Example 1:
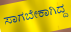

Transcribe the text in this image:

ಸಾಗಬೇಕಾಗಿದ್ದ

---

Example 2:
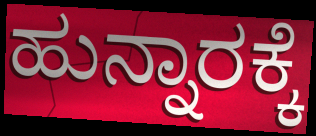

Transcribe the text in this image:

ಹುನ್ನಾರಕ್ಕೆ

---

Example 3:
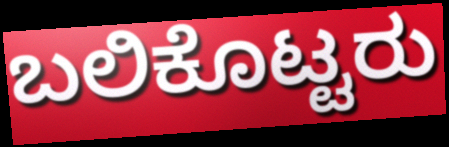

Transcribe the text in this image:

ಬಲಿಕೊಟ್ಟರು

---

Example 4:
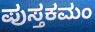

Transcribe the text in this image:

ಪುಸ್ತಕಮಂ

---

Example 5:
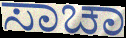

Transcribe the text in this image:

ಸಾಚಾ